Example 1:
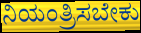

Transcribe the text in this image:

ನಿಯಂತ್ರಿಸಬೇಕು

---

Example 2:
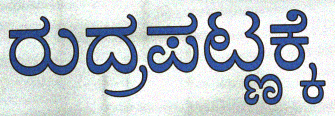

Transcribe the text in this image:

ರುದ್ರಪಟ್ಣಕ್ಕೆ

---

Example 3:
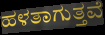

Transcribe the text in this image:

ಹಳತಾಗುತ್ತವೆ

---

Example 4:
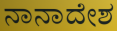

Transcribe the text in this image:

ನಾನಾದೇಶ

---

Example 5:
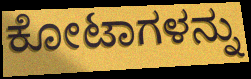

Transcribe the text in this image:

ಕೋಟಾಗಳನ್ನು